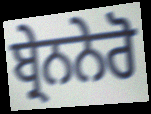
ਬ੍ਰੇਨਨੇਰੋ